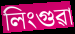
লিংগুৱা